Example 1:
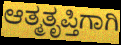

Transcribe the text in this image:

ಆತ್ಮತೃಪ್ತಿಗಾಗಿ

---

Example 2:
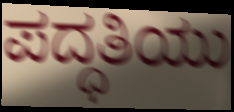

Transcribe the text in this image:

ಪದ್ಧತಿಯು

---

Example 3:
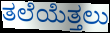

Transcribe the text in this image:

ತಲೆಯೆತ್ತಲು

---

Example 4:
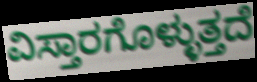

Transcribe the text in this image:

ವಿಸ್ತಾರಗೊಳ್ಳುತ್ತದೆ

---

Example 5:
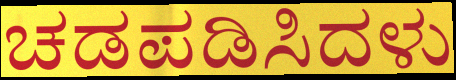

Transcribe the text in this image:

ಚಡಪಡಿಸಿದಳು